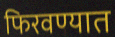
फिरवण्यात